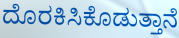
ದೊರಕಿಸಿಕೊಡುತ್ತಾನೆ